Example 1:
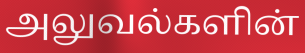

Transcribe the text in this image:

அலுவல்களின்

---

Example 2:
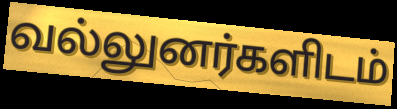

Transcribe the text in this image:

வல்லுனர்களிடம்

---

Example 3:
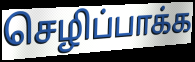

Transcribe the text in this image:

செழிப்பாக்க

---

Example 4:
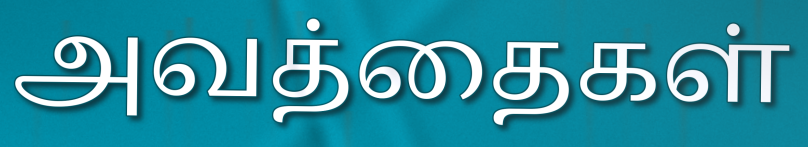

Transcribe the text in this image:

அவத்தைகள்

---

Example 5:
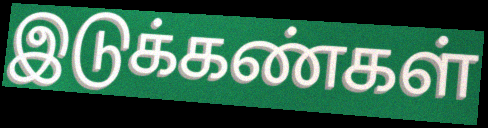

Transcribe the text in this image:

இடுக்கண்கள்